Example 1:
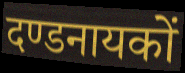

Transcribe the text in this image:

दण्डनायकों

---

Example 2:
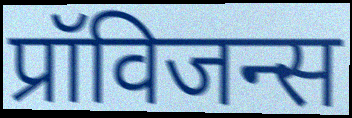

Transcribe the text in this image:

प्रॉविजन्स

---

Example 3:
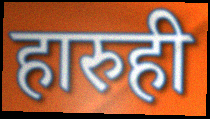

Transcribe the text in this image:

हारुही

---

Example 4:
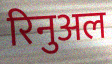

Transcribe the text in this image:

रिनुअल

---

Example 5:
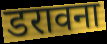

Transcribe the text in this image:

डरावना